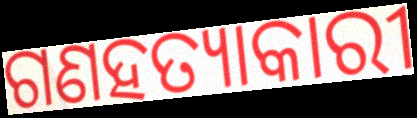
ଗଣହତ୍ୟାକାରୀ